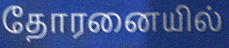
தோரனையில்